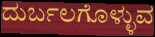
ದುರ್ಬಲಗೊಳ್ಳುವ